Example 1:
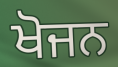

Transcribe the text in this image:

ਖੋਜਨ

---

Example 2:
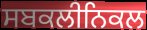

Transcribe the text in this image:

ਸਬਕਲੀਨਿਕਲ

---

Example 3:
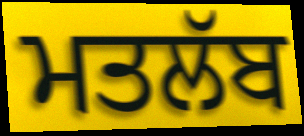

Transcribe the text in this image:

ਮਤਲੱਬ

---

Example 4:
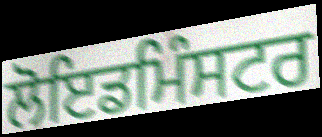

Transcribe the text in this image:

ਲੋਇਡਮਿੰਸਟਰ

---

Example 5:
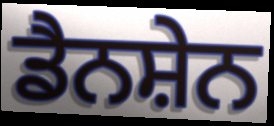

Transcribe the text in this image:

ਡੈਨਸ਼ੇਨ